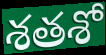
శతశో